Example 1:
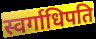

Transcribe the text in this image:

स्वर्गाधिपति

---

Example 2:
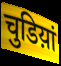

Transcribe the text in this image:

चुडिय़ां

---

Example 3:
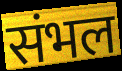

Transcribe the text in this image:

संभल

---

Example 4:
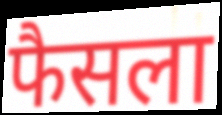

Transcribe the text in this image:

फैसला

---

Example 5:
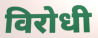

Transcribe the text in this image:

विरोधी